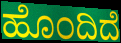
ಹೊಂದಿದೆ